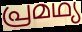
പ്രമഥ്യ